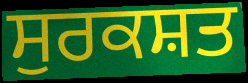
ਸੁਰਕਸ਼ਤ